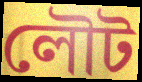
লৌট